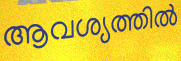
ആവശ്യത്തിൽ